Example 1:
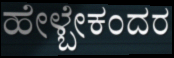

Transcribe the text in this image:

ಹೇಳ್ಬೇಕಂದರ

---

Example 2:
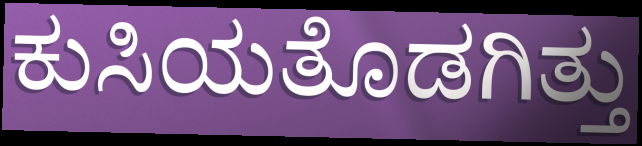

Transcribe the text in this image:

ಕುಸಿಯತೊಡಗಿತ್ತು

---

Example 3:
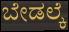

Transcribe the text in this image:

ಬೇಡಲ್ಕೆ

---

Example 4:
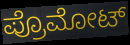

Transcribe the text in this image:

ಪ್ರೊಮೋಟ್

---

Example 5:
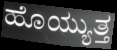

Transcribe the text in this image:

ಹೊಯ್ಯುತ್ತ